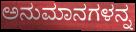
ಅನುಮಾನಗಳನ್ನ